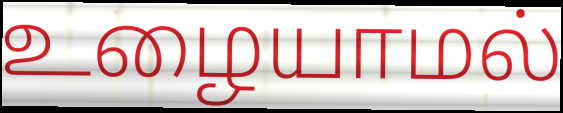
உழையாமல்